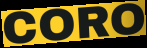
CORO